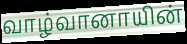
வாழ்வானாயின்